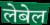
लेबेल